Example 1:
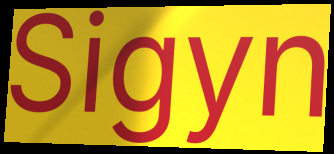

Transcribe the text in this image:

Sigyn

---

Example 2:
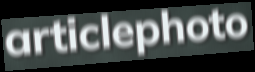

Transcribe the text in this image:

articlephoto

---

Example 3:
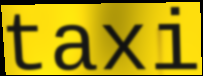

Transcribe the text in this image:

taxi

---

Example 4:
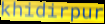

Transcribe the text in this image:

khidirpur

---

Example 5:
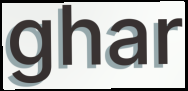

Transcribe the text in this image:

ghar